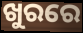
ଖୁରରେ